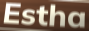
Estha